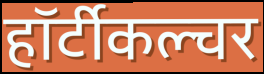
हॉर्टीकल्चर